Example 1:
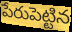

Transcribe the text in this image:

పేరుపెట్టిన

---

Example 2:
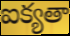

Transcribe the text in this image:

ఐక్యతా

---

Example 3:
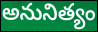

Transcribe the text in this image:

అనునిత్యం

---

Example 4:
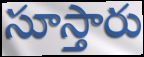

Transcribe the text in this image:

సూస్తారు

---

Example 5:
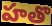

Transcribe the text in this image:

హతొ